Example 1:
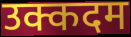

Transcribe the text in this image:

उक्कदम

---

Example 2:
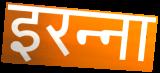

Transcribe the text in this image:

इरन्ना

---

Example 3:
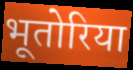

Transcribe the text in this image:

भूतोरिया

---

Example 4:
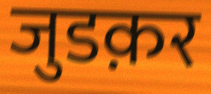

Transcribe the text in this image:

जुडक़र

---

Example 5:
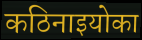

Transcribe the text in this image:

कठिनाइयोका